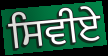
ਸਿਵੀਏ